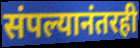
संपल्यानंतरही